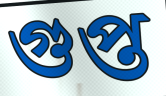
গুপ্ত